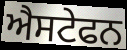
ਐਸਟੇਫਨ